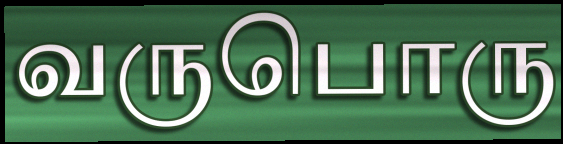
வருபொரு